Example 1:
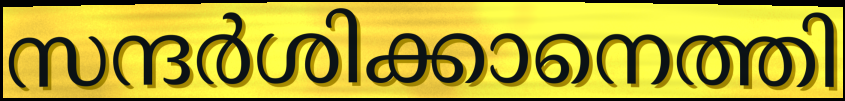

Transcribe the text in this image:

സന്ദർശിക്കാനെത്തി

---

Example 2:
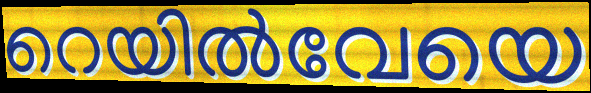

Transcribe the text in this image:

റെയിൽവേയെ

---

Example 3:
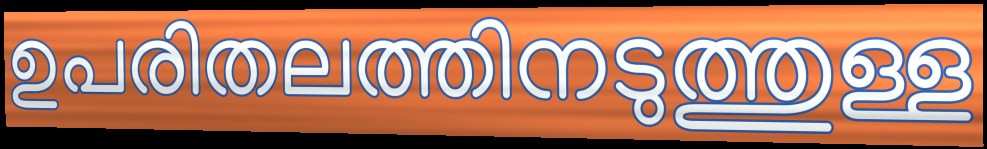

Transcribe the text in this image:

ഉപരിതലത്തിനടുത്തുള്ള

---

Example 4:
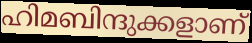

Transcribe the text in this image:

ഹിമബിന്ദുക്കളാണ്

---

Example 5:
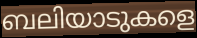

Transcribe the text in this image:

ബലിയാടുകളെ